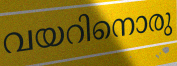
വയറിനൊരു